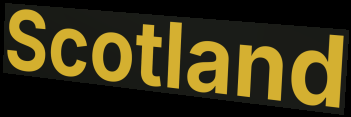
Scotland